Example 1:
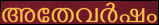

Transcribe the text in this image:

അതേവർഷം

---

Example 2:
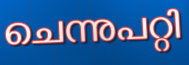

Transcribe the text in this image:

ചെന്നുപറ്റി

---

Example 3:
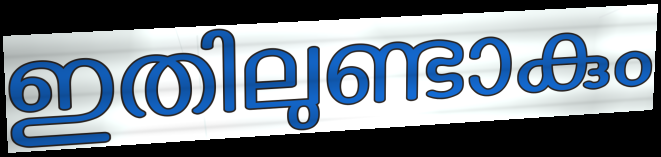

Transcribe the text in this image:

ഇതിലുണ്ടാകും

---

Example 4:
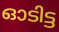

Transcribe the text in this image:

ഓടിട്ട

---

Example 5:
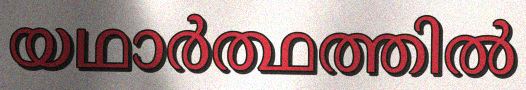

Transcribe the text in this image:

യഥാർത്ഥത്തിൽ